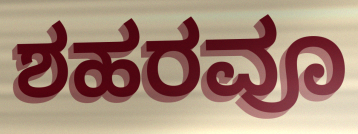
ಶಹರವೂ